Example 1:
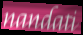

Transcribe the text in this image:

nandati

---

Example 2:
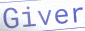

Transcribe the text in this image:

Giver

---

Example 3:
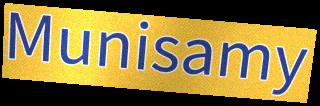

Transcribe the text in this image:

Munisamy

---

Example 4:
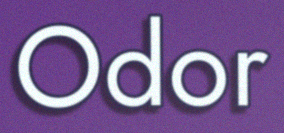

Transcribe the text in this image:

Odor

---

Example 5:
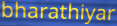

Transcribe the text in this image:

bharathiyar